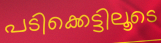
പടിക്കെട്ടിലൂടെ